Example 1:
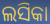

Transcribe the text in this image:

ଲସିକା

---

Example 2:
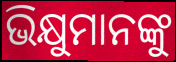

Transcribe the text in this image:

ଭିକ୍ଷୁମାନଙ୍କୁ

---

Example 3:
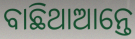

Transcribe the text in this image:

ବାଛିଥାଆନ୍ତେ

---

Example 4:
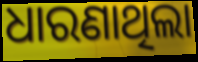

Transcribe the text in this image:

ଧାରଣାଥିଲା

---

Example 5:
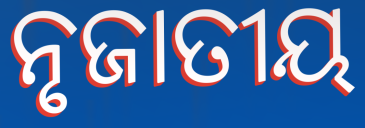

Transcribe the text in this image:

ନୃଜାତୀୟ